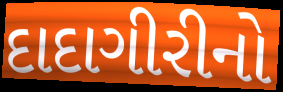
દાદાગીરીનો